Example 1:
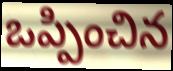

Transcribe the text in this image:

ఒప్పించిన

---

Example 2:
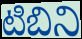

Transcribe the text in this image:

టిబిని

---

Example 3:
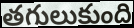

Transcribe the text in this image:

తగులుకుంది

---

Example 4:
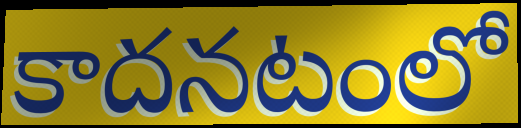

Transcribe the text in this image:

కాదనటంలో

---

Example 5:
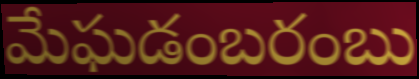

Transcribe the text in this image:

మేఘడంబరంబు